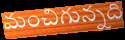
మంచిగున్నది